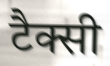
टैक्सी